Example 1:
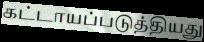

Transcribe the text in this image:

கட்டாயப்படுத்தியது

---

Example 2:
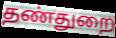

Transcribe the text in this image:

தண்துறை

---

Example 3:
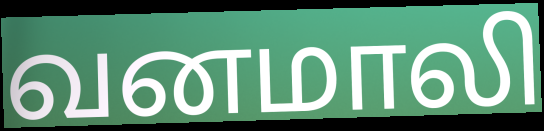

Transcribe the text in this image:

வனமாலி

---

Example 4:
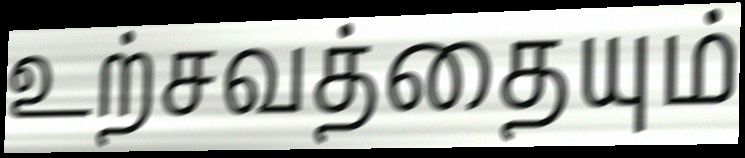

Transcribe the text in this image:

உற்சவத்தையும்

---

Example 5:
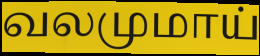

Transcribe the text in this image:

வலமுமாய்